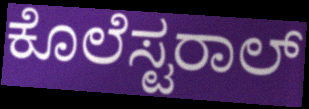
ಕೊಲೆಸ್ಟರಾಲ್